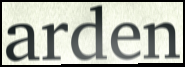
arden